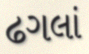
ઢગલાં